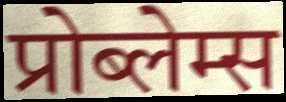
प्रोब्लेम्स